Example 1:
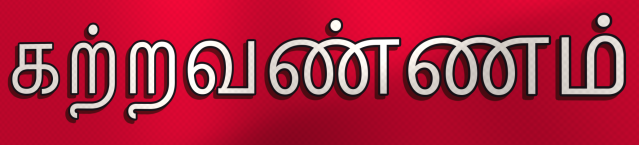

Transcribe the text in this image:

கற்றவண்ணம்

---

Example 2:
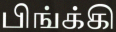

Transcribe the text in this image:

பிங்க்கி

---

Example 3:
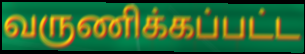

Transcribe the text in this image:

வருணிக்கப்பட்ட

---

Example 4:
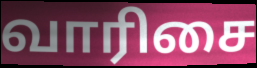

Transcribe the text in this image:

வாரிசை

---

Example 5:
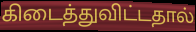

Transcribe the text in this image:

கிடைத்துவிட்டதால்